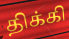
திக்கி